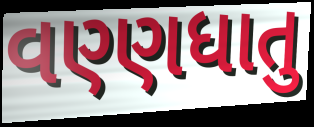
વણ્ણધાતુ